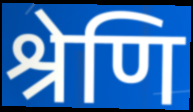
श्रेणि